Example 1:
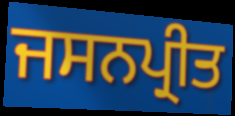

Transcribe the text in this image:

ਜਸਨਪ੍ਰੀਤ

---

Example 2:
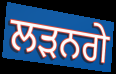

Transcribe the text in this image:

ਲੜਨਗੇ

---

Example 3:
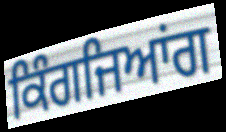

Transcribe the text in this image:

ਕਿੰਗਜਿਆਂਗ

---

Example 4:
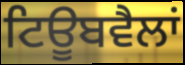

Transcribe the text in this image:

ਟਿਊਬਵੈਲਾਂ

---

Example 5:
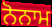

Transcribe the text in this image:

ਨੋਨਾਮ